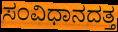
ಸಂವಿಧಾನದತ್ತ